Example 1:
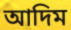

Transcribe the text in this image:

আদিম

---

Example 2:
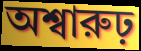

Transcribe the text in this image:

অশ্বারুঢ়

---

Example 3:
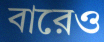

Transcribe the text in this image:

বারেও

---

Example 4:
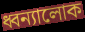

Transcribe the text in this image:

ধ্বন্যালোক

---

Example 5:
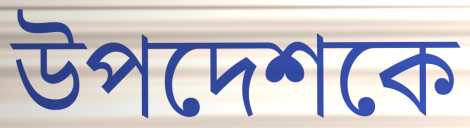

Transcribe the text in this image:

উপদেশকে